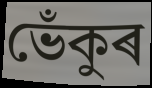
ভেঁকুৰ